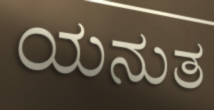
ಯನುತ